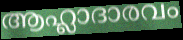
ആഹ്ലാദാരവം